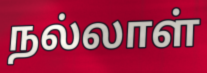
நல்லாள்